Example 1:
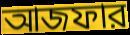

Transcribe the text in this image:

আজফার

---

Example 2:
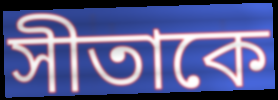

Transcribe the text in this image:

সীতাকে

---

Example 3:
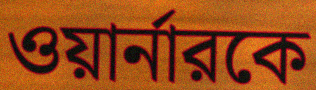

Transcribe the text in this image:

ওয়ার্নারকে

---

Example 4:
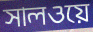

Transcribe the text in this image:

সালওয়ে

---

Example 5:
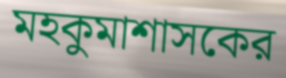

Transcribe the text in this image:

মহকুমাশাসকের